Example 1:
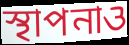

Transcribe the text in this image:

স্থাপনাও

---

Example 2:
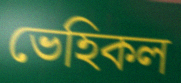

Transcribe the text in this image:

ভেহিকল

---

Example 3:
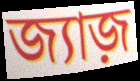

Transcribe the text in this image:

জ্যাজ়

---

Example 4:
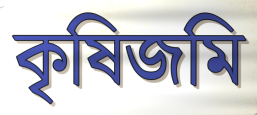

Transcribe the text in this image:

কৃষিজমি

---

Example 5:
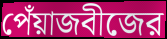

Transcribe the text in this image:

পেঁয়াজবীজের